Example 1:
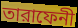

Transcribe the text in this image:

তারাফেনী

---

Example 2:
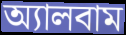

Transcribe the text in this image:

অ্যালবাম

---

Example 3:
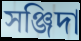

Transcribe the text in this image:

সঞ্জিদা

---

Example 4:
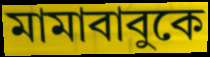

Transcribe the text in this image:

মামাবাবুকে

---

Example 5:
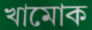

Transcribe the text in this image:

খামোক